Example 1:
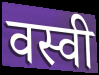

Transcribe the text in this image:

वस्वी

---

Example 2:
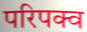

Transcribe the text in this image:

परिपक्व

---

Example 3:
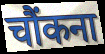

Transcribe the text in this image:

चौंकना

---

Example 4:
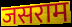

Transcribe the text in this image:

जसराम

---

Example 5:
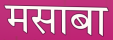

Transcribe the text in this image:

मसाबा